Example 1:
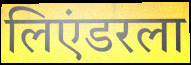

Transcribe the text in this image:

लिएंडरला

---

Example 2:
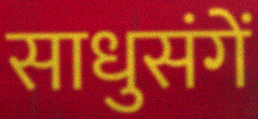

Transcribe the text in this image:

साधुसंगें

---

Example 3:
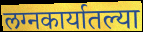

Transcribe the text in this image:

लग्नकार्यातल्या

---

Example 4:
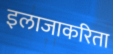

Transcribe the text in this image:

इलाजाकरिता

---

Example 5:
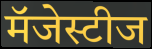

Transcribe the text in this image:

मॅजेस्टीज